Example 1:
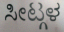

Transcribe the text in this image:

ಸೀಟ್ಗಳ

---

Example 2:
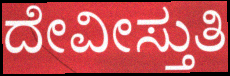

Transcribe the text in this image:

ದೇವೀಸ್ತುತಿ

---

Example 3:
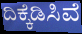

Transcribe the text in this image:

ದಿಕ್ಕೆಡಿಸಿವೆ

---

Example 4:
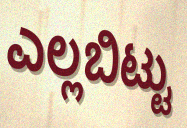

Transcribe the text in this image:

ಎಲ್ಲಬಿಟ್ಟು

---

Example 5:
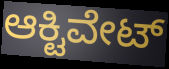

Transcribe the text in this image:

ಆಕ್ಟಿವೇಟ್